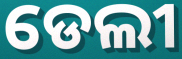
ଡେଲୀ